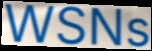
WSNs